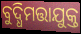
ବୁଦ୍ଧିମତ୍ତାଯୁକ୍ତ